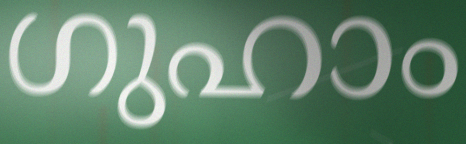
ഗുഹാം